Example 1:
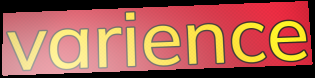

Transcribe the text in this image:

varience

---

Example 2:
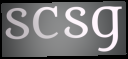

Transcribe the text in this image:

scsg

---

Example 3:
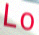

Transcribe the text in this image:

Lo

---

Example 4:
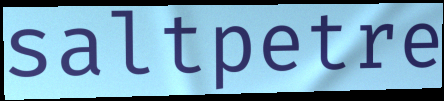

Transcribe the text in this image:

saltpetre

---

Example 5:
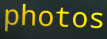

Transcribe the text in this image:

photos